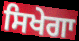
ਸਿਖੇਗਾ